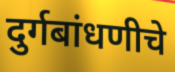
दुर्गबांधणीचे